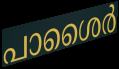
പാശൈർ